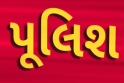
પૂલિશ